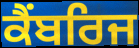
ਕੈਂਬਰਿਜ